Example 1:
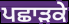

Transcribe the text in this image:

ਪਛਾੜਕੇ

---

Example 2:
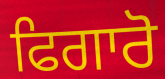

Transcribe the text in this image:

ਫਿਗਾਰੋ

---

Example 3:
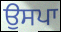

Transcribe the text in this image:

ਉਸਪਾ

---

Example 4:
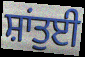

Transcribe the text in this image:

ਸ਼ਾਂਤੁਈ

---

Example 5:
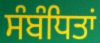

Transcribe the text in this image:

ਸੰਬੰਧਿਤਾਂ